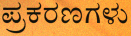
ಪ್ರಕರಣಗಳು